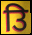
उि